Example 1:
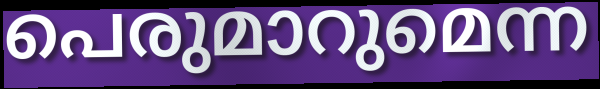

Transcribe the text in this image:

പെരുമാറുമെന്ന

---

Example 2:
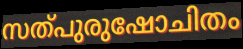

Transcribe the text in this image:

സത്പുരുഷോചിതം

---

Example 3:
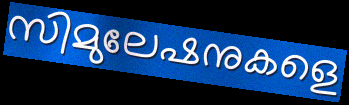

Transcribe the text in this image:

സിമുലേഷനുകളെ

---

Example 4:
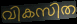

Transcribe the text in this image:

വികസിത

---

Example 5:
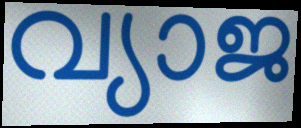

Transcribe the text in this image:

വ്യാജ